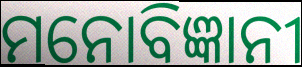
ମନୋବିଜ୍ଞାନୀ